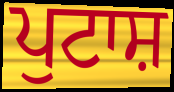
ਪੁਟਾਸ਼